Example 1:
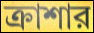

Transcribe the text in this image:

ক্রাশার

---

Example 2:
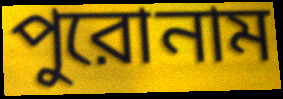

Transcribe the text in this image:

পুরোনাম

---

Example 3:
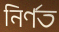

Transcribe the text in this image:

নির্ণত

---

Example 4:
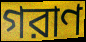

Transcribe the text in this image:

গরাণ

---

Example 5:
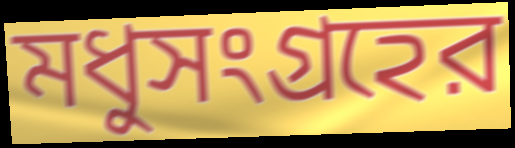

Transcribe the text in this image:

মধুসংগ্রহের